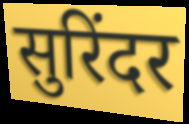
सुरिंदर